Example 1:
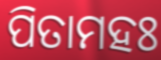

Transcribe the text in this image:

ପିତାମହଃ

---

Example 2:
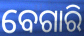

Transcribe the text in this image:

ବେଗାରି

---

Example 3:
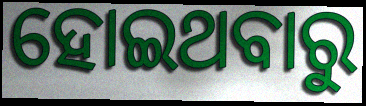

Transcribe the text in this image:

ହୋଇଥବାରୁ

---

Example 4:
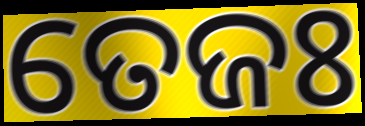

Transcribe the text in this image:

ତେଜଃ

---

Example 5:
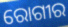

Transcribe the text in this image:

ରୋଗୀର